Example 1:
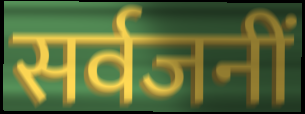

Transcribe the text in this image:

सर्वजनीं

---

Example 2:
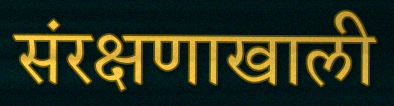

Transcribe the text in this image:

संरक्षणाखाली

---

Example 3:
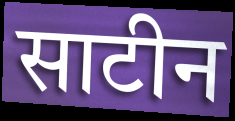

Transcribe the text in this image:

साटीन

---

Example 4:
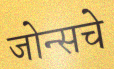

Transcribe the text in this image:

जोन्सचे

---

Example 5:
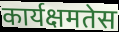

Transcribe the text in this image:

कार्यक्षमतेस